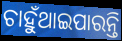
ଚାହୁଁଥାଇପାରନ୍ତି